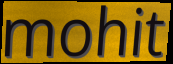
mohit